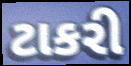
ટાકરી